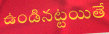
ఉండినట్టయితే